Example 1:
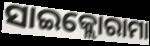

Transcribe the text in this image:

ସାଇକ୍ଲୋରାମା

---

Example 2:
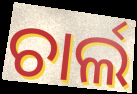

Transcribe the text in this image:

ଚାର୍ଲ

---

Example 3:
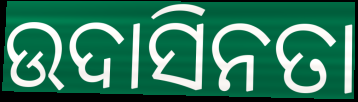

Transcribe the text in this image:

ଉଦାସିନତା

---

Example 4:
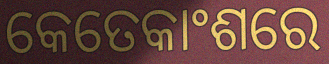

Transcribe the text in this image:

କେତେକାଂଶରେ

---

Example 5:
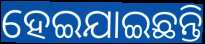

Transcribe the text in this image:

ହେଇଯାଇଛନ୍ତି